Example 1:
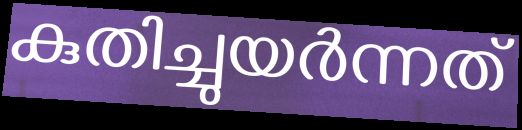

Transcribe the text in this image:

കുതിച്ചുയർന്നത്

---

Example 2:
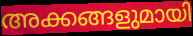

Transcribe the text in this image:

അക്കങ്ങളുമായി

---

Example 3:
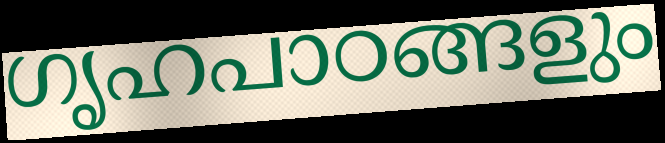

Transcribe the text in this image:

ഗൃഹപാഠങ്ങളും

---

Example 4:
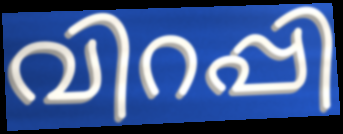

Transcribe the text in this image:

വിറപ്പി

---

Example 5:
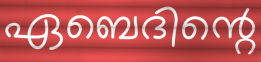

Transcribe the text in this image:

ഏബെദിന്റെ